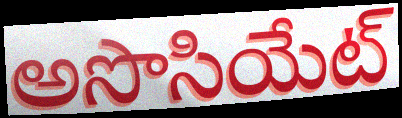
అసొసియేట్